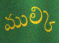
ముల్కి